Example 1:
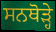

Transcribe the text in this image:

ਸਨਥੋੜ੍ਹੇ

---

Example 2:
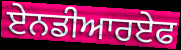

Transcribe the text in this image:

ਏਨਡੀਆਰਏਫ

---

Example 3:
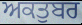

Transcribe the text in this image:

ਅਕਤੁਬਰ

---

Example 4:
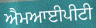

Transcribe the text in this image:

ਐਮਆਈਪੀਟੀ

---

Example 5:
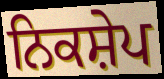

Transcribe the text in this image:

ਨਿਕਸ਼ੇਪ